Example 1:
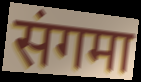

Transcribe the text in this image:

संगमा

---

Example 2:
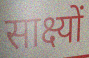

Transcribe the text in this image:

साक्ष्यों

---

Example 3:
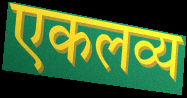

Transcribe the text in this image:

एकलव्य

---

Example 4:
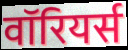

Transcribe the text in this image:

वॉरियर्स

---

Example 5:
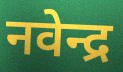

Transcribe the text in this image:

नवेन्द्र